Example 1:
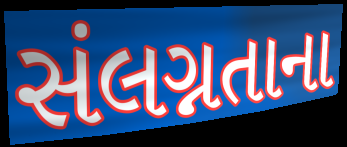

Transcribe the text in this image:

સંલગ્નતાના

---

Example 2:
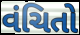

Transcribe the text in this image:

વંચિતો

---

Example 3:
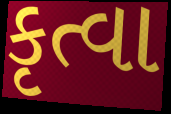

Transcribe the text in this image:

કૃત્વા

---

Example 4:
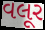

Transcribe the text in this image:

વલૂર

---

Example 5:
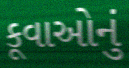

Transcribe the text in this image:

કૂવાઓનું